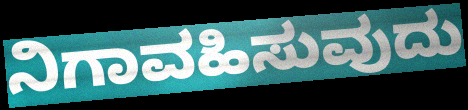
ನಿಗಾವಹಿಸುವುದು